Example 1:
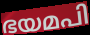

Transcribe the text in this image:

ഭയമപി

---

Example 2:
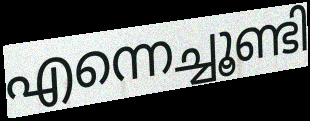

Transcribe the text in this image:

എന്നെച്ചൂണ്ടി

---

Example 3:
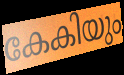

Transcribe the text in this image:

കേകിയും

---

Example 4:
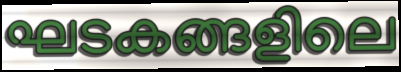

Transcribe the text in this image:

ഘടകങ്ങളിലെ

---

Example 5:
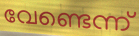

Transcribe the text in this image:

വേണ്ടെന്ന്